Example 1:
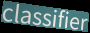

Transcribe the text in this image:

classifier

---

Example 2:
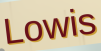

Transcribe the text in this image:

Lowis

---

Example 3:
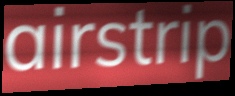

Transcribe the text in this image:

airstrip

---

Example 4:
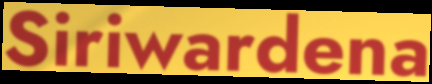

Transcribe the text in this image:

Siriwardena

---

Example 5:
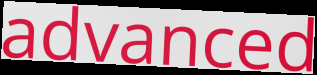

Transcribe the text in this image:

advanced